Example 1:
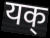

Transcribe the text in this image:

यक्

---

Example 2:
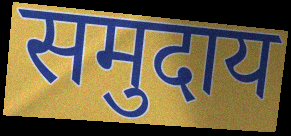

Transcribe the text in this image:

समुदाय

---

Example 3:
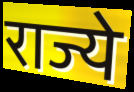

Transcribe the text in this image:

राज्ये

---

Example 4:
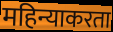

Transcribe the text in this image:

महिन्याकरता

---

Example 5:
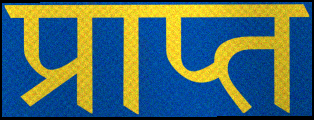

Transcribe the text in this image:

प्राप्त